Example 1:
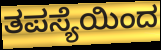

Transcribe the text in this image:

ತಪಸ್ಯೆಯಿಂದ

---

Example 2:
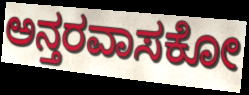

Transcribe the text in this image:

ಅನ್ತರವಾಸಕೋ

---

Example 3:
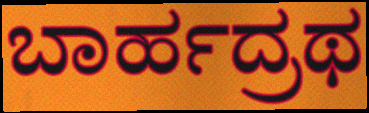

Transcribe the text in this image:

ಬಾರ್ಹದ್ರಥ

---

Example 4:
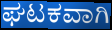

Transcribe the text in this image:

ಘಟಕವಾಗಿ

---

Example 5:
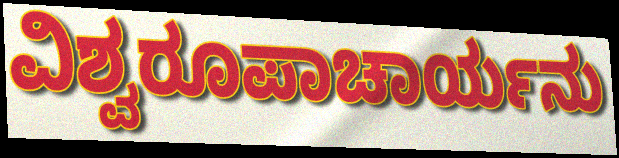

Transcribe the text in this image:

ವಿಶ್ವರೂಪಾಚಾರ್ಯನು